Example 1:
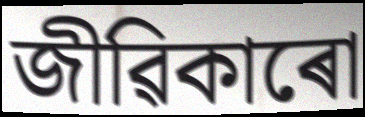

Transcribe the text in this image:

জীৱিকাৰো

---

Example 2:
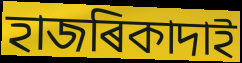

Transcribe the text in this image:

হাজৰিকাদাই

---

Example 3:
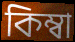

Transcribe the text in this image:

কিম্বা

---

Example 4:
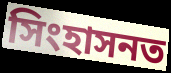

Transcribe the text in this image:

সিংহাসনত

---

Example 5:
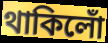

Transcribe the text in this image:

থাকিলোঁ